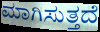
ಮಾಗಿಸುತ್ತದೆ